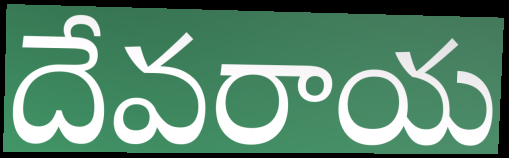
దేవరాయ